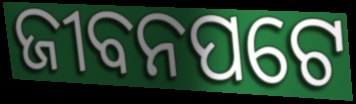
ଜୀବନପଟେ